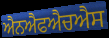
ਐਨਐਫਐਚਐਸ